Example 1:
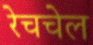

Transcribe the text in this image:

रेचचेल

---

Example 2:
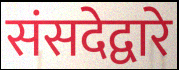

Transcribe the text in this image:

संसदेद्वारे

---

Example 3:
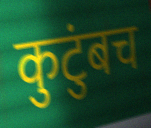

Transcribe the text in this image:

कुटुंबच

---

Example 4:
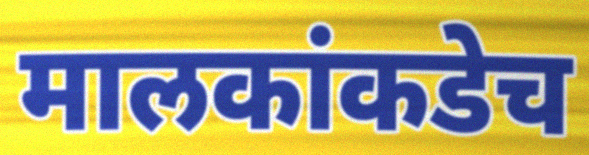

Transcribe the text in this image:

मालकांकडेच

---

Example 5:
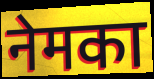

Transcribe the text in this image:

नेमका